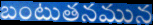
బంటుతనమున